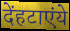
देंहटाएंये